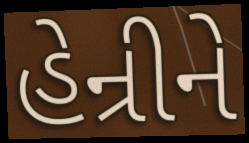
હેન્રીને